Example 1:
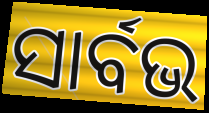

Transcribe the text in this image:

ସାର୍ବଭ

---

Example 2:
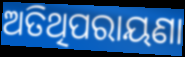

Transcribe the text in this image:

ଅତିଥିପରାୟଣା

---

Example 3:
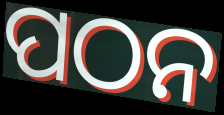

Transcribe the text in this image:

ପଠନ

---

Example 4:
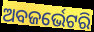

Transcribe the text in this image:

ଅବଜର୍ଭେଟରି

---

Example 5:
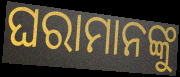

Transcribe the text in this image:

ଘରାମାନଙ୍କୁ